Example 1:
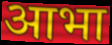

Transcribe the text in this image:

आभा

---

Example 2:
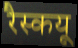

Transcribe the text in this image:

रैस्कयू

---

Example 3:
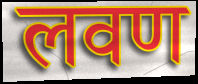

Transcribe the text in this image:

लवण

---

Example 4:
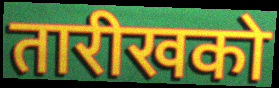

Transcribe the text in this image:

तारीखको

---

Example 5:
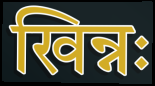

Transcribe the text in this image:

खिन्नः